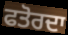
ਫਤੋਰਦਾ